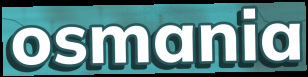
osmania